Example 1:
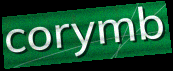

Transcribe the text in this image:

corymb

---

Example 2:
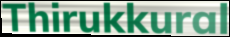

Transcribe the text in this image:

Thirukkural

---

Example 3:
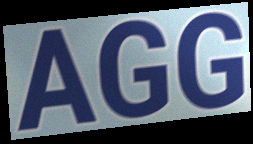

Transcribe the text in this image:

AGG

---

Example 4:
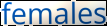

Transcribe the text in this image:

females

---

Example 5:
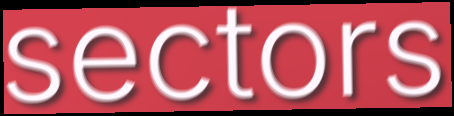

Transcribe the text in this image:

sectors